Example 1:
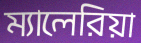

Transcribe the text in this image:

ম্যালেরিয়া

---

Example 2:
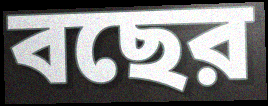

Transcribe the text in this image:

বছের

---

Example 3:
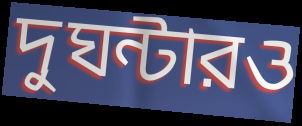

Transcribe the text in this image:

দুঘন্টারও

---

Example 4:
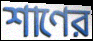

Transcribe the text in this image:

শাণের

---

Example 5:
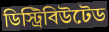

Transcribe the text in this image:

ডিস্ট্রিবিউটেড